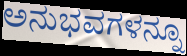
ಅನುಭವಗಳನ್ನೂ